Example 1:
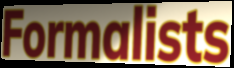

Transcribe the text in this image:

Formalists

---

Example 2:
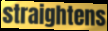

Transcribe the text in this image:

straightens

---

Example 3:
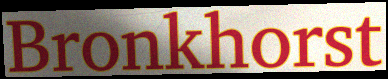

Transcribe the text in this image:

Bronkhorst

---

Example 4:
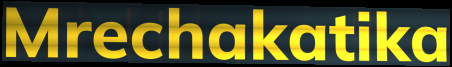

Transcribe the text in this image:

Mrechakatika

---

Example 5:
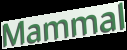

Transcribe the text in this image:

Mammal